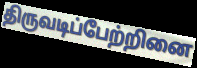
திருவடிப்பேற்றினை